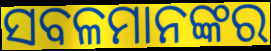
ସବଳମାନଙ୍କର